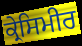
ਕ੍ਰੇਸਿਮੀਰ